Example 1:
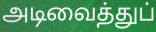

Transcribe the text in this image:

அடிவைத்துப்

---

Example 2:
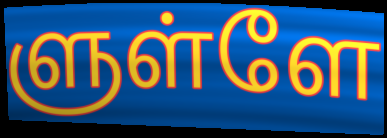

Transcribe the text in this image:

ளுள்ளே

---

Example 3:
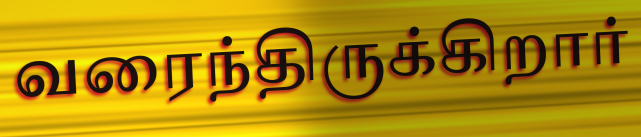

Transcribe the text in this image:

வரைந்திருக்கிறார்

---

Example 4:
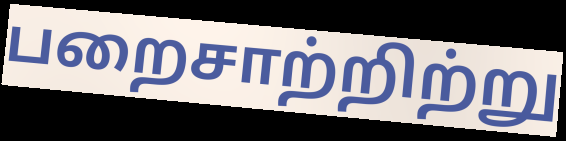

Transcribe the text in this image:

பறைசாற்றிற்று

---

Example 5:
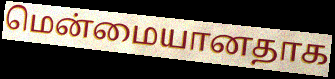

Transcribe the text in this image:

மென்மையானதாக